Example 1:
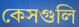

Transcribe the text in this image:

কেসগুলি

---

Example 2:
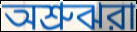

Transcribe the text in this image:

অশ্রুঝরা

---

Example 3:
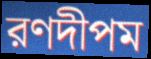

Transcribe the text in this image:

রণদীপম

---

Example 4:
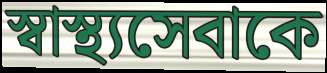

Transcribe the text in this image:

স্বাস্থ্যসেবাকে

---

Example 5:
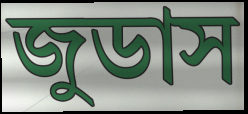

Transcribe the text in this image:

জুডাস